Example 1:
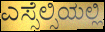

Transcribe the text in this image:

ಎಸ್ಸೆಲ್ಸಿಯಲ್ಲಿ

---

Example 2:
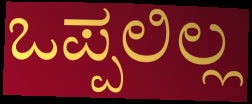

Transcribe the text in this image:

ಒಪ್ಪಲಿಲ್ಲ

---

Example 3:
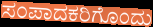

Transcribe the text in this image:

ಸಂಪಾದಕರಿಗೊಂದು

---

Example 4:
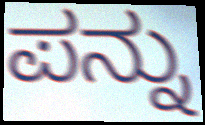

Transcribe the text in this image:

ಪನ್ನು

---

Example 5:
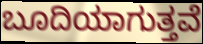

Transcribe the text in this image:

ಬೂದಿಯಾಗುತ್ತವೆ